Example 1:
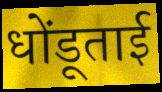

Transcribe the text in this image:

धोंडूताई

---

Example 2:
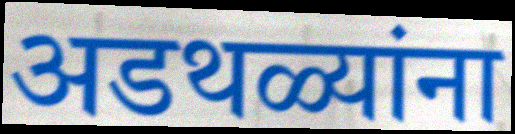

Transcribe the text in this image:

अडथळ्यांना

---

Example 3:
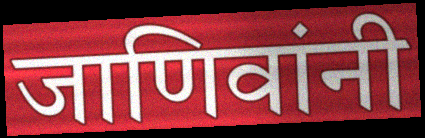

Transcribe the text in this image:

जाणिवांनी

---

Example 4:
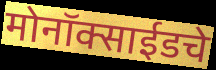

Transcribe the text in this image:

मोनॉक्साईडचे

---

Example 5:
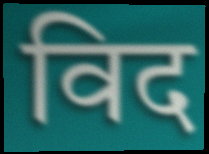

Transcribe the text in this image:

विद